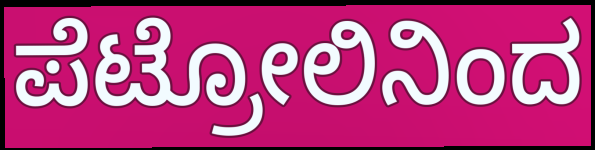
ಪೆಟ್ರೋಲಿನಿಂದ